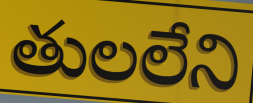
తులలేని